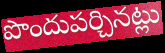
పొందుపర్చినట్లు